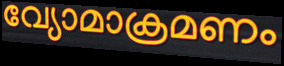
വ്യോമാക്രമണം